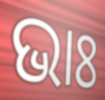
ଭାଃ